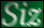
Siz